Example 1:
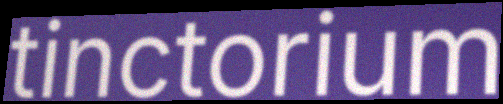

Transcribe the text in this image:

tinctorium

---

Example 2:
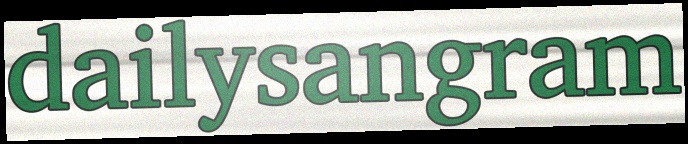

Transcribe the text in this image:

dailysangram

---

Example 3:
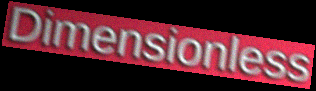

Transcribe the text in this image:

Dimensionless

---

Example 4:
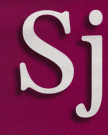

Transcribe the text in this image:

Sj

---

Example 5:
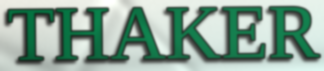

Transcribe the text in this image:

THAKER